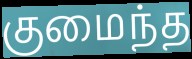
குமைந்த